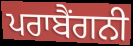
ਪਰਾਬੈਂਗਨੀ